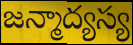
జన్మాద్యస్య